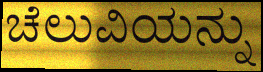
ಚೆಲುವಿಯನ್ನು